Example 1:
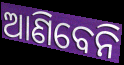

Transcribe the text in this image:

ଆଣିବେନି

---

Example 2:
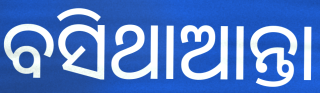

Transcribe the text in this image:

ବସିଥାଆନ୍ତା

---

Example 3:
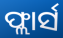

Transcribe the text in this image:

ଫ୍ଲାର୍ସ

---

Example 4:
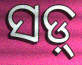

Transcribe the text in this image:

ସଡ଼୍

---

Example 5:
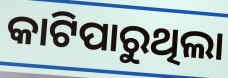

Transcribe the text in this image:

କାଟିପାରୁଥିଲା